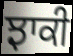
ਝਾਕੀ